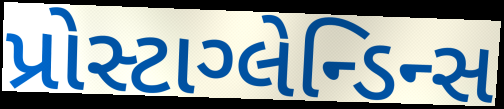
પ્રોસ્ટાગ્લેન્ડિન્સ